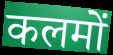
कलमों